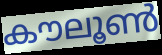
കൗലൂൺ